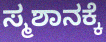
ಸ್ಮಶಾನಕ್ಕೆ